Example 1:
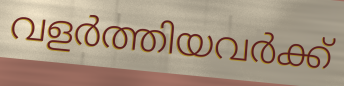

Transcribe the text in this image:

വളർത്തിയവർക്ക്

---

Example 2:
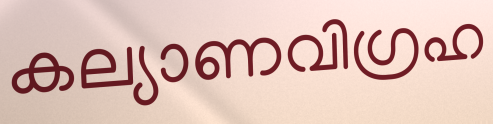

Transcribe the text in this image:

കല്യാണവിഗ്രഹ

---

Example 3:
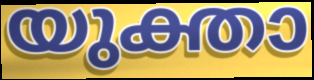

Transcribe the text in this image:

യുക്താ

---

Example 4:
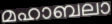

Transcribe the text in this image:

മഹാബലാ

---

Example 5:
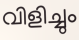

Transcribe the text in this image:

വിളിച്ചും